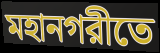
মহানগরীতে